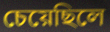
চেয়েছিলে